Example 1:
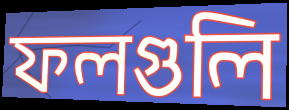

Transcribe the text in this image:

ফলগুলি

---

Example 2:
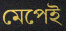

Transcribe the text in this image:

মেপেই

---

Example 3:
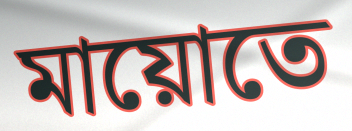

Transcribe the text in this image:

মায়োতে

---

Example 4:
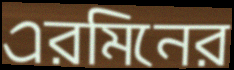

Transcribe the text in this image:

এরমিনের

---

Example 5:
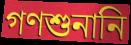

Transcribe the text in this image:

গণশুনানি